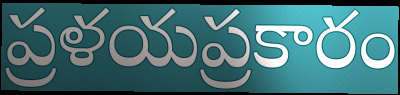
ప్రళయప్రకారం